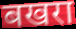
बखरा